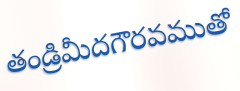
తండ్రిమీదగౌరవముతో